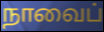
நாவைப்